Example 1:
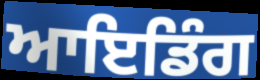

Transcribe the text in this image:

ਆਇਡਿੰਗ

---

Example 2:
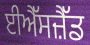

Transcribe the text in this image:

ਈਐੱਸਜ਼ੈੱਡ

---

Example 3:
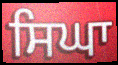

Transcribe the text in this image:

ਸਿਘਾ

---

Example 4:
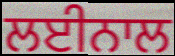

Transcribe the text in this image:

ਲਈਨਾਲ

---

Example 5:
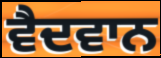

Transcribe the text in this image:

ਵੈਦਵਾਨ